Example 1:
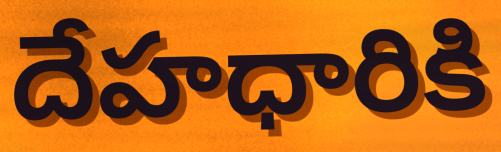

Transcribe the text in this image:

దేహధారికి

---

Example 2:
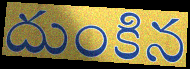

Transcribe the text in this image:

దుంకిన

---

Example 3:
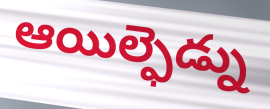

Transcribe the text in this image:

ఆయిల్ఫెడ్ను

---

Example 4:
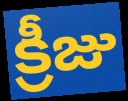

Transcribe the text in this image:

క్రీజు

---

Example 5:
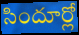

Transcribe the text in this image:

సిందూర్లో